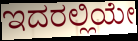
ಇದರಲ್ಲಿಯೇ